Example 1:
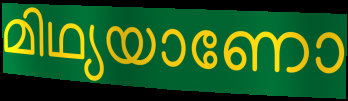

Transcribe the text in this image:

മിഥ്യയാണോ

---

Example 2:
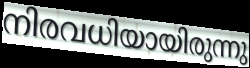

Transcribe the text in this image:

നിരവധിയായിരുന്നു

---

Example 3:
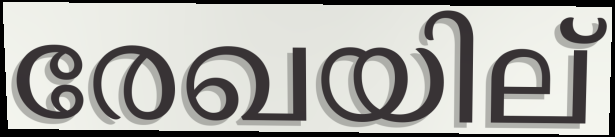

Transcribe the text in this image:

രേഖയില്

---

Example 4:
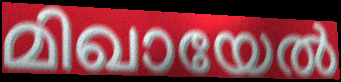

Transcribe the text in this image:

മിഖായേൽ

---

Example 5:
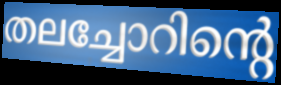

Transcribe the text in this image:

തലച്ചോറിന്റെ